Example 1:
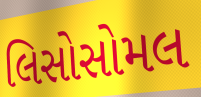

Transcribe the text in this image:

લિસોસોમલ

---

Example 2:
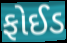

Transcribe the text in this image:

ફોઈડ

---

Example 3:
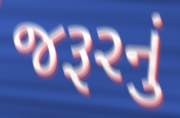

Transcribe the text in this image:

જરૂરનું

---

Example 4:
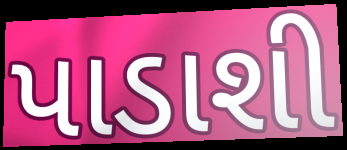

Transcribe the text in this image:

પાડાશી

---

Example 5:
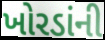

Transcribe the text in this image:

ખોરડાંની